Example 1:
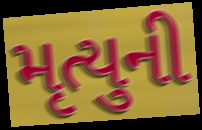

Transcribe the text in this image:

મૃત્યુની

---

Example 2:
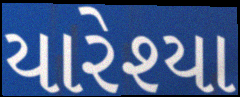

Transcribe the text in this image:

યારેશ્યા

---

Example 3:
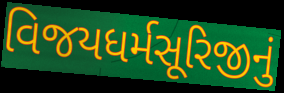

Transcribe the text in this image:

વિજયધર્મસૂરિજીનું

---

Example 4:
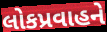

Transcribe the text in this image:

લોકપ્રવાહને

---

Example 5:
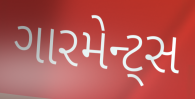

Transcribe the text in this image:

ગારમેન્ટ્સ